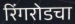
रिंगरोडचा